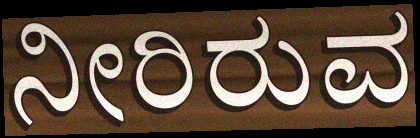
ನೀರಿರುವ